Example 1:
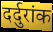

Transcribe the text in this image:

दर्दुरांक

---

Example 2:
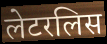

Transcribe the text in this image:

लेटरलिस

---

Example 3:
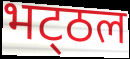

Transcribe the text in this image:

भट्‌ठल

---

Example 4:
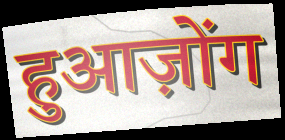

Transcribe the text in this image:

हुआज़ोंग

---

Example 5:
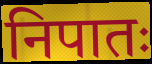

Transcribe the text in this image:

निपातः